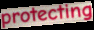
protecting